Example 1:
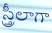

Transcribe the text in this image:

స్త్రీలాగా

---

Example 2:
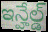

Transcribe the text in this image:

ఇన్హేల్డ్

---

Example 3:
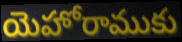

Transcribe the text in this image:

యెహోరాముకు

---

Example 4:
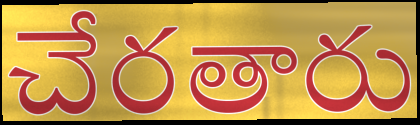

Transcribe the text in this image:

చేరతారు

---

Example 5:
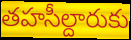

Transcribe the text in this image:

తహసీల్దారుకు